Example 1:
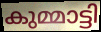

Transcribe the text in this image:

കുമ്മാട്ടി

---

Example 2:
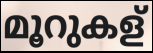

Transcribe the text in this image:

മൂറുകള്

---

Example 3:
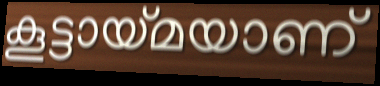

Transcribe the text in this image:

കൂട്ടായ്മയാണ്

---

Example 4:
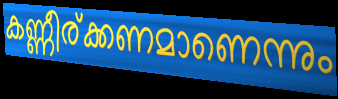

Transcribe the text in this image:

കണ്ണീര്ക്കണമാണെന്നും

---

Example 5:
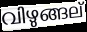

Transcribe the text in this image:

വിഴുങ്ങല്